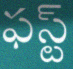
ఫస్ట్